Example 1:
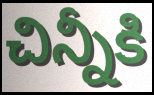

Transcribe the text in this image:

చిన్నీకి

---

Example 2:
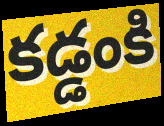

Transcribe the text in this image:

కడ్డంకి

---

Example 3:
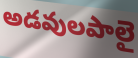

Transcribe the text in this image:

అడవులపాలై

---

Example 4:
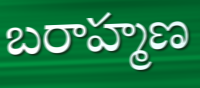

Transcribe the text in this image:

బరాహ్మణ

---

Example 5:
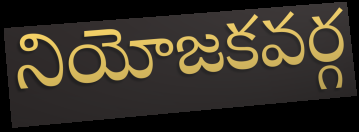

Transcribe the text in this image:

నియోజకవర్గ